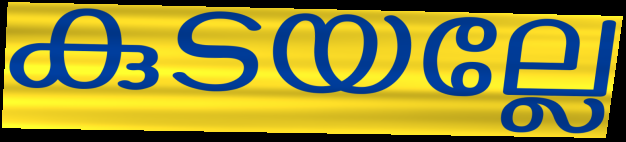
കുടയല്ലേ